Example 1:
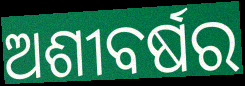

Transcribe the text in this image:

ଅଶୀବର୍ଷର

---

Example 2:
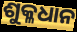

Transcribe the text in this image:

ଶୁକ୍ଳଧାନ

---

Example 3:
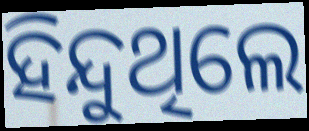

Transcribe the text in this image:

ହିନ୍ଦୁଥିଲେ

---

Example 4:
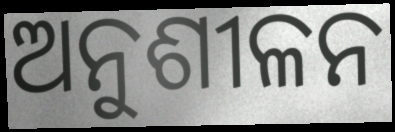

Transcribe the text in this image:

ଅନୁଶୀଳନ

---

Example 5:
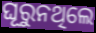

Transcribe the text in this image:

ଘୂରୁନଥିଲେ